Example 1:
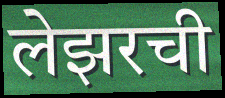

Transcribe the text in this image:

लेझरची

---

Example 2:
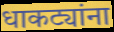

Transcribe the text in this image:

धाकट्यांना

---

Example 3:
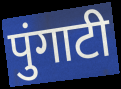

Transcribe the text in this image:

पुंगाटी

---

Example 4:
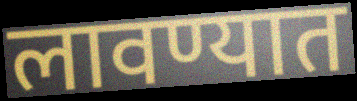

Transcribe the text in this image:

लावण्यात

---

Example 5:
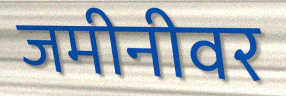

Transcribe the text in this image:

जमीनीवर